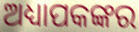
ଅଧ୍ୟାପକଙ୍କର